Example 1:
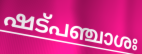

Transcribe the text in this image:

ഷട്പഞ്ചാശഃ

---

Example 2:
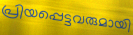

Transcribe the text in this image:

പ്രിയപ്പെട്ടവരുമായി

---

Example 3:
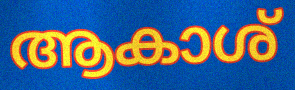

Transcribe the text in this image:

ആകാശ്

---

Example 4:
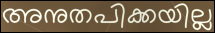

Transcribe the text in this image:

അനുതപിക്കയില്ല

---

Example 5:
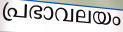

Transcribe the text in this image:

പ്രഭാവലയം